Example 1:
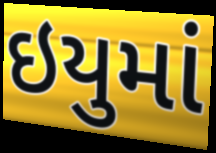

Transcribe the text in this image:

ઇયુમાં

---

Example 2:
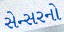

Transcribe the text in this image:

સેન્સરનો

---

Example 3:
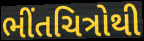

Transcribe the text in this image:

ભીંતચિત્રોથી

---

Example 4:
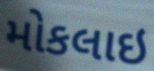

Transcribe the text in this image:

મોકલાઇ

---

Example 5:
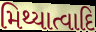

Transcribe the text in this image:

મિથ્યાત્વાદિ